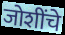
जोशींचे